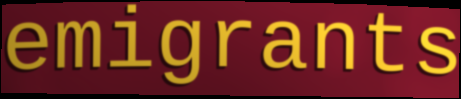
emigrants